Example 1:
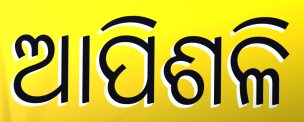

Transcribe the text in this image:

ଆପିଶଳି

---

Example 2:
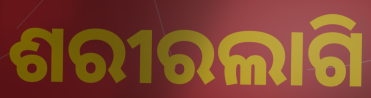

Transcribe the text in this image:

ଶରୀରଲାଗି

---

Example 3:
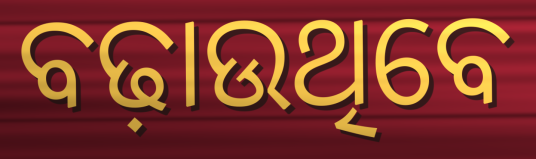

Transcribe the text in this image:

ବଢ଼ାଉଥିବେ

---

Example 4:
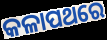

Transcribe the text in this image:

କଳାପଥରେ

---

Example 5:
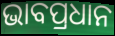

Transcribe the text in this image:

ଭାବପ୍ରଧାନ